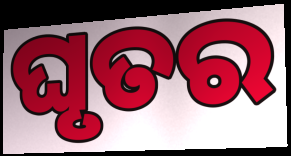
ଘୃତର